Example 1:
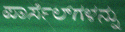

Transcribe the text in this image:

ಪಾರ್ಸೆಲ್‌ಗಳನ್ನು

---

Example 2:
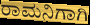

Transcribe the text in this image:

ರಾಮನಿಗಾಗಿ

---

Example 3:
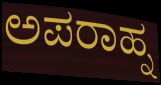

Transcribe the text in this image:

ಅಪರಾಹ್ನ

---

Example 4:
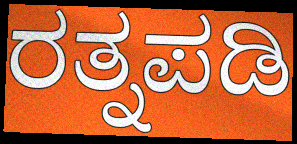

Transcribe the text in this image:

ರತ್ನಪಡಿ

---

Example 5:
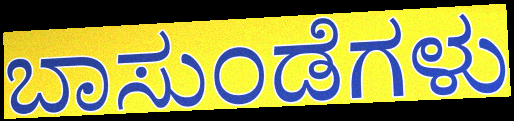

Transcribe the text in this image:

ಬಾಸುಂಡೆಗಳು